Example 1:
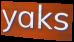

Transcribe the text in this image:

yaks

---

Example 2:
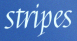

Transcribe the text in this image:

stripes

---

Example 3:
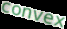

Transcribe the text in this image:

convex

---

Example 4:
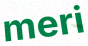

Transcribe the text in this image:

meri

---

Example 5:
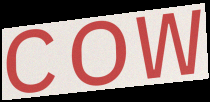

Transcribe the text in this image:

cow